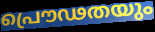
പ്രൌഢതയും